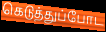
கெடுத்துப்போட